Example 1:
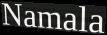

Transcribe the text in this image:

Namala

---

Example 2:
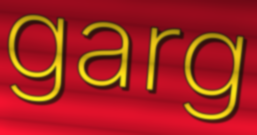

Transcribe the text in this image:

garg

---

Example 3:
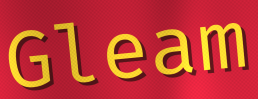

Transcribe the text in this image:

Gleam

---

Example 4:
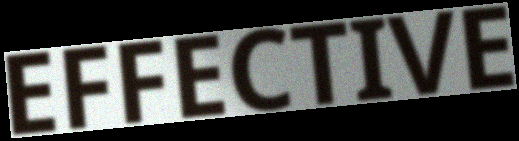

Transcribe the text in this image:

EFFECTIVE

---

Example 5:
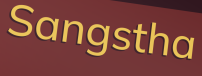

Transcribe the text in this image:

Sangstha